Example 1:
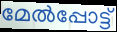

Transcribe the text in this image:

മേൽപ്പോട്ട്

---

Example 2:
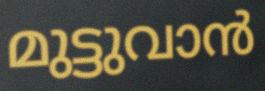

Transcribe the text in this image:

മുട്ടുവാൻ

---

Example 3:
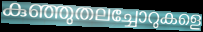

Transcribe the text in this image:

കുഞ്ഞുതലച്ചോറുകളെ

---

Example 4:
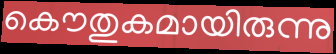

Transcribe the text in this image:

കൌതുകമായിരുന്നു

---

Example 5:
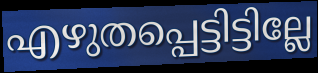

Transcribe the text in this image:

എഴുതപ്പെട്ടിട്ടില്ലേ